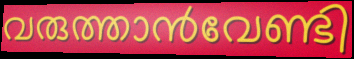
വരുത്താൻവേണ്ടി